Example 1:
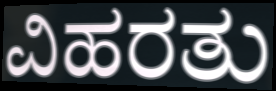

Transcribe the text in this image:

ವಿಹರತು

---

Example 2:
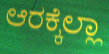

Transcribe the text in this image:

ಆರಕ್ಕೆಲ್ಲಾ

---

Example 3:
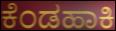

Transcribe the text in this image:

ಕೆಂಡಹಾಕಿ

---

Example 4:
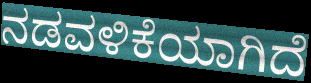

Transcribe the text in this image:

ನಡವಳಿಕೆಯಾಗಿದೆ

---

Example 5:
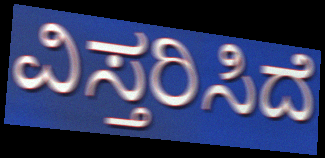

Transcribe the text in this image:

ವಿಸ್ತರಿಸಿದೆ